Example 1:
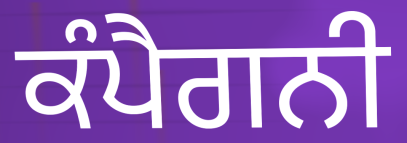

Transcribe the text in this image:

ਕੰਪੈਗਨੀ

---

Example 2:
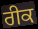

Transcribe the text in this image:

ਰੀਕ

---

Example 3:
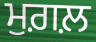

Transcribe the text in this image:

ਮੁਗ਼ਲ਼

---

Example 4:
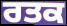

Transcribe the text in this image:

ਰਤਕ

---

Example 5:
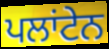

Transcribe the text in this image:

ਪਲਾਂਟੇਨ